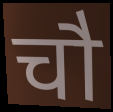
चौ